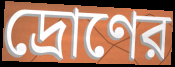
দ্রোণের